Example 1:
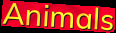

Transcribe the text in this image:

Animals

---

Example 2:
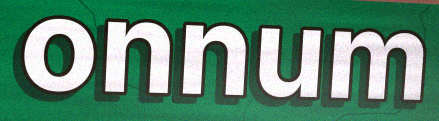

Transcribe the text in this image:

onnum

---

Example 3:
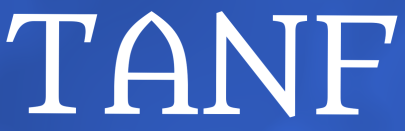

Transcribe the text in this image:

TANF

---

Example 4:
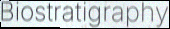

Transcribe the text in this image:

Biostratigraphy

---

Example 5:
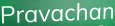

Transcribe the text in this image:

Pravachan